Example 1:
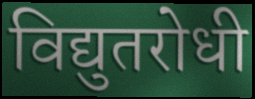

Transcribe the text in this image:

विद्युतरोधी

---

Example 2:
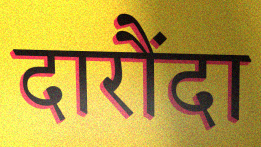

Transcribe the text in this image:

दारौंदा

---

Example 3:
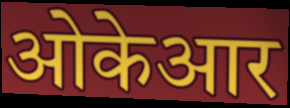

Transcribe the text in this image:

ओकेआर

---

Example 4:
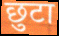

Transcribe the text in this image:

छुटा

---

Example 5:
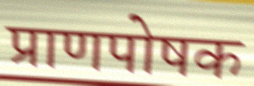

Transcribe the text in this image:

प्राणपोषक